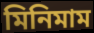
মিনিমাম